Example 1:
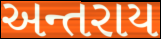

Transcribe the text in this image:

અન્તરાય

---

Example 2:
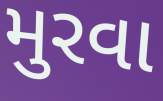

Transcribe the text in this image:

મુરવા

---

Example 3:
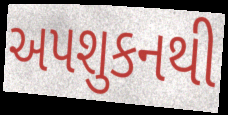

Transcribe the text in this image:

અપશુકનથી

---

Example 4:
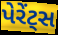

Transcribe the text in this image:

પેરેંટ્સ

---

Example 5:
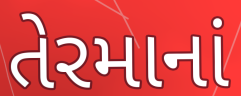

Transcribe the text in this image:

તેરમાનાં